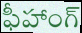
ఫీహాంగ్